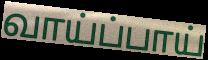
வாய்ப்பாய்